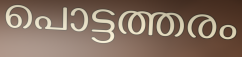
പൊട്ടത്തരം